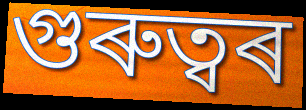
গুৰুত্বৰ